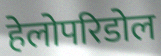
हेलोपरिडोल